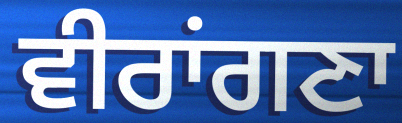
ਵੀਰਾਂਗਣਾ